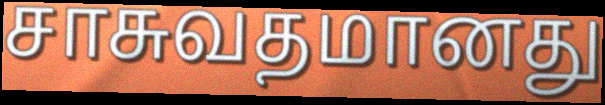
சாசுவதமானது